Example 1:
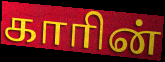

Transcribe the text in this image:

காரின்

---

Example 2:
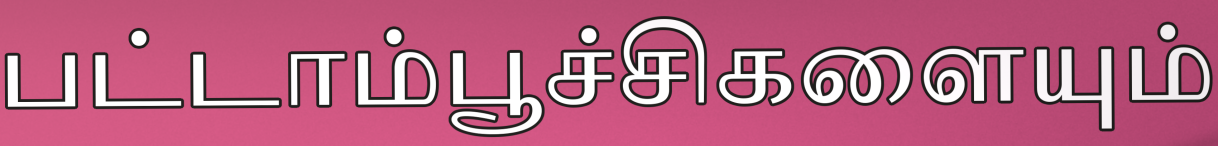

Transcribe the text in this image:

பட்டாம்பூச்சிகளையும்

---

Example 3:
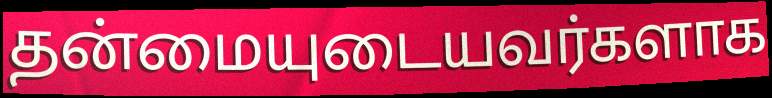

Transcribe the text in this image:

தன்மையுடையவர்களாக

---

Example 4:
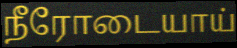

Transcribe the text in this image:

நீரோடையாய்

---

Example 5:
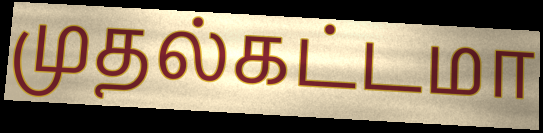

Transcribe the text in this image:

முதல்கட்டமா